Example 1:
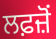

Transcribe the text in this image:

ਲਫ਼ਜ਼ੋਂ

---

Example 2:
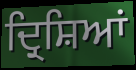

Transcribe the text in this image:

ਦ੍ਰਿਸ਼ਿਆਂ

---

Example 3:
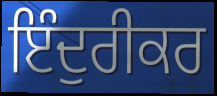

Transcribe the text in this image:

ਇੰਦੁਰੀਕਰ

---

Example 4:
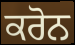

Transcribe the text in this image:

ਕਰੋਨ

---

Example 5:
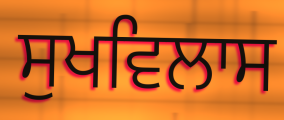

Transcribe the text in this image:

ਸੁਖਵਿਲਾਸ